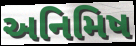
અનિમિષ